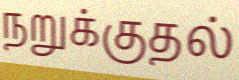
நறுக்குதல்